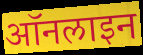
ऑनलाइन